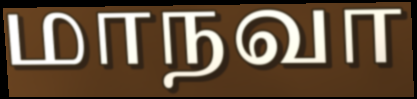
மாநவா